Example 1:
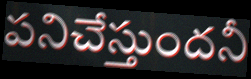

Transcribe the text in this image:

పనిచేస్తుందనీ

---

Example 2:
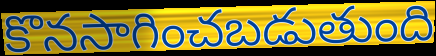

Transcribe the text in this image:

కొనసాగించబడుతుంది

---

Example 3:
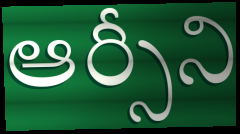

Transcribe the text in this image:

ఆర్సీని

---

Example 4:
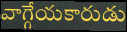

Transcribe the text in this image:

వాగ్గేయకారుడు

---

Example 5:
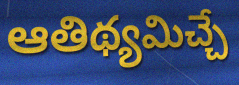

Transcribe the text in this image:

ఆతిథ్యమిచ్చే